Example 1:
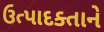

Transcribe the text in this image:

ઉત્પાદક્તાને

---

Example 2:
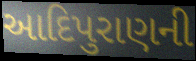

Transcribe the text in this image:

આદિપુરાણની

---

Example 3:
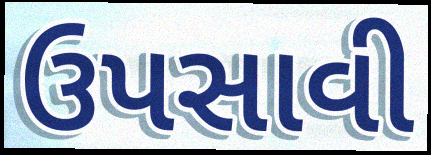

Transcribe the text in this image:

ઉપસાવી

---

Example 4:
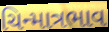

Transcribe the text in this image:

ચિન્માત્રભાવ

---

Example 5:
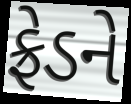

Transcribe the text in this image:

ફ્રેડને